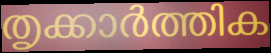
തൃക്കാർത്തിക